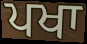
ਪਖਾ